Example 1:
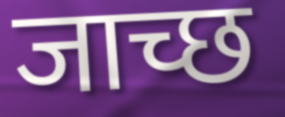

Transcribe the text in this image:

जाच्छ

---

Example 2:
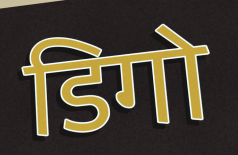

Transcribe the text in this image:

डिगो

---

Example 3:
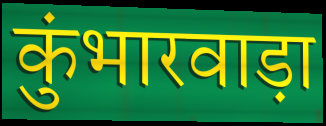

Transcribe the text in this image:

कुंभारवाड़ा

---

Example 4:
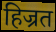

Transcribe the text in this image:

हिज्रत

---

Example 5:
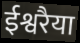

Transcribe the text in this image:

ईश्वरैया